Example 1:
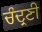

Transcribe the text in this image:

ਚੰਦ੍ਰਣੀ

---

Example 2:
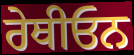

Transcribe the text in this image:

ਰੇਥੀਓਨ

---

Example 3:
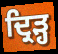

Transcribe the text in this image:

ਦ੍ਰਿੜ੍ਹ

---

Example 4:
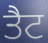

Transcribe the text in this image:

ਤੈਟ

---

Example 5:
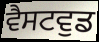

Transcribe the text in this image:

ਵੈਸਟਵੁਡ